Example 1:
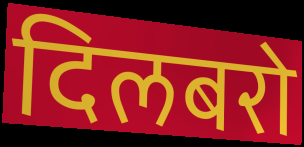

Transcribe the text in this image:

दिलबरो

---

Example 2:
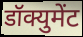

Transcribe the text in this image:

डॉक्युमेंट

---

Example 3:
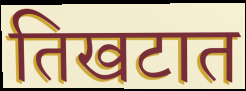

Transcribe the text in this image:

तिखटात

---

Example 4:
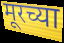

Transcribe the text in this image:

मूरच्या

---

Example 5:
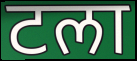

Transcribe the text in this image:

टला